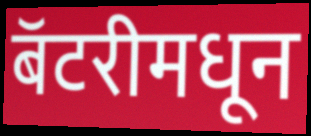
बॅटरीमधून